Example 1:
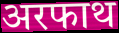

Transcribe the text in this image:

अरफाथ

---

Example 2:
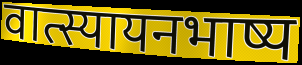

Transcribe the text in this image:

वात्स्यायनभाष्य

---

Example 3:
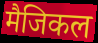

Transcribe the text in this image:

मैजिकल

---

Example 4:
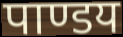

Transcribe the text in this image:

पाण्डय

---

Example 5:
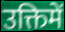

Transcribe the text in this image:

उक्तिमें